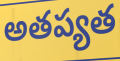
అతప్యత